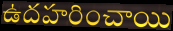
ఉదహరించాయి